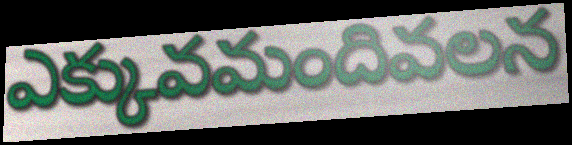
ఎక్కువమందివలన